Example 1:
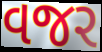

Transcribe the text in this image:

વજર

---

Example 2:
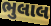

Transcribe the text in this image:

ભુલાલ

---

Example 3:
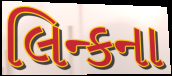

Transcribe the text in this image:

લિન્કના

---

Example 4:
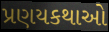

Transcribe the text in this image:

પ્રણયકથાઓ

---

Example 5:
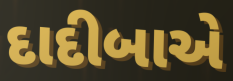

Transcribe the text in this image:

દાદીબાએ